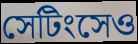
সেটিংসেও